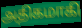
அதிகமாகி